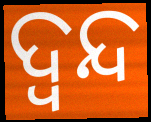
ଦ୍ବନ୍ଦ